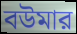
বউমার